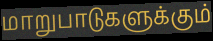
மாறுபாடுகளுக்கும்